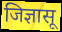
जिज्ञासू